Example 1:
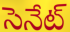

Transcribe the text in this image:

సెనేట్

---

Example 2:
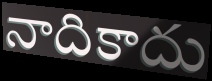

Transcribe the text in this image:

నాదికాదు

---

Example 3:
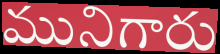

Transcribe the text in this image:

మునిగారు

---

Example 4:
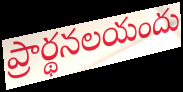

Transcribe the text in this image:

ప్రార్థనలయందు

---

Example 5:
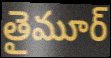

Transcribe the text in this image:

తైమూర్